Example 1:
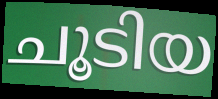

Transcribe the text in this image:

ചൂടിയ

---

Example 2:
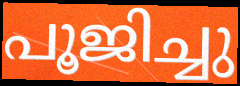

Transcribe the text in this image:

പൂജിച്ചു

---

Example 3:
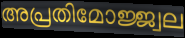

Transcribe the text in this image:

അപ്രതിമോജ്ജ്വല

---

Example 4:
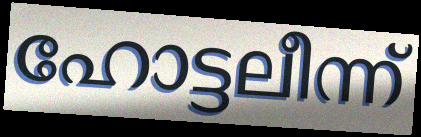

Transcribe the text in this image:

ഹോട്ടലീന്ന്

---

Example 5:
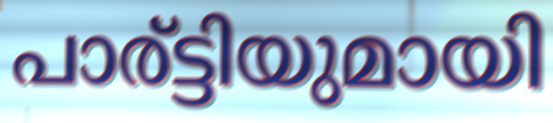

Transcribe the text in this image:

പാര്ട്ടിയുമായി